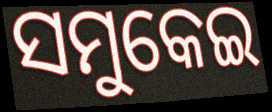
ସମୁକେଇ